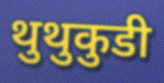
थुथुकुडी